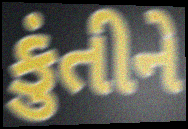
કુંતીને